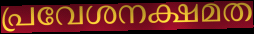
പ്രവേശനക്ഷമത